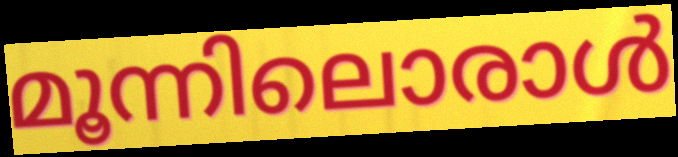
മൂന്നിലൊരാൾ